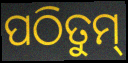
ପଠିତୁମ୍